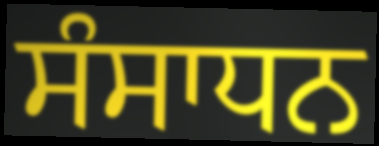
ਸੰਸਾਧਨ